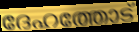
ദേഹത്തോട്